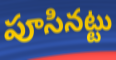
పూసినట్టు